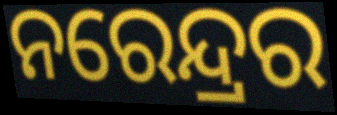
ନରେନ୍ଦ୍ରର